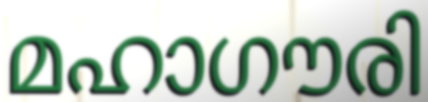
മഹാഗൗരി